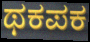
ಥಕಪಕ